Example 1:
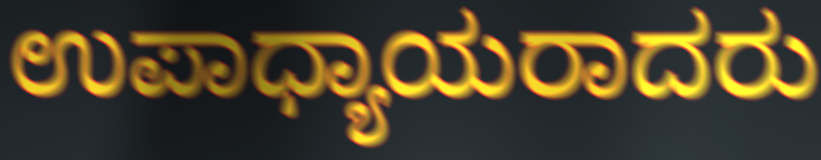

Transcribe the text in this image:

ಉಪಾಧ್ಯಾಯರಾದರು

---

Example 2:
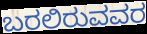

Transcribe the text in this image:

ಬರಲಿರುವವರ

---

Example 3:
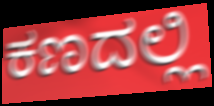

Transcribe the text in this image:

ಕಣದಲ್ಲಿ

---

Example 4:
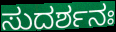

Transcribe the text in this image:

ಸುದರ್ಶನಃ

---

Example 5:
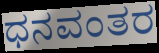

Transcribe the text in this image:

ಧನವಂತರ